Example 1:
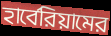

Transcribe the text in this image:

হার্বেরিয়ামের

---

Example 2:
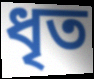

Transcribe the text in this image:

ধৃত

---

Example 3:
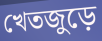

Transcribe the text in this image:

খেতজুড়ে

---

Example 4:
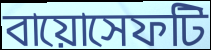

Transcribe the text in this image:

বায়োসেফটি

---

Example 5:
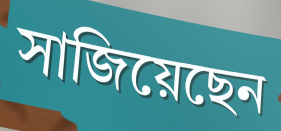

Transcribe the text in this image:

সাজিয়েছেন